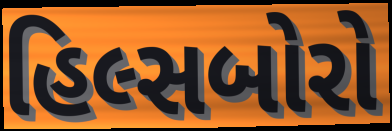
હિલ્સબોરો